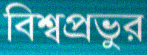
বিশ্বপ্রভুর